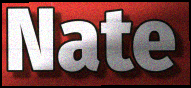
Nate